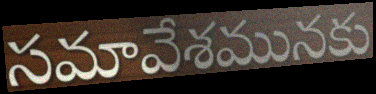
సమావేశమునకు